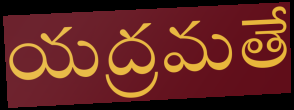
యద్రమతే